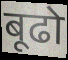
बूढो